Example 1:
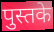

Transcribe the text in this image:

पुस्तके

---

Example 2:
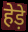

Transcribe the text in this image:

हेड़े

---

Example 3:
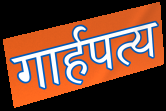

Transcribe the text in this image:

गार्हपत्य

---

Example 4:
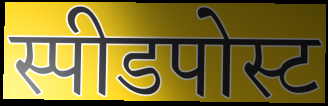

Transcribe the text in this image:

स्पीडपोस्ट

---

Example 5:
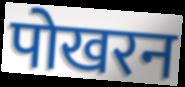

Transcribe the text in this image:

पोखरन